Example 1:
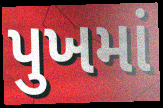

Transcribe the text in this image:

પુખમાં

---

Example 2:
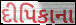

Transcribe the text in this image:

દીપિકાના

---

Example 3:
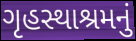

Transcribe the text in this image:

ગૃહસ્થાશ્રમનું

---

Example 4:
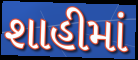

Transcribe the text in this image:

શાહીમાં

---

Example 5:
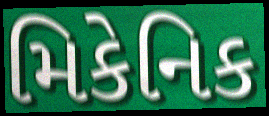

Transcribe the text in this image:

મિકેનિક